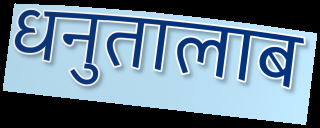
धनुतालाब